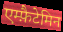
एम्फ़ैटेमिन